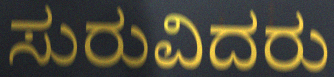
ಸುರುವಿದರು